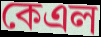
কেএল